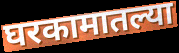
घरकामातल्या